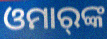
ଓମାର୍‌ଙ୍କ